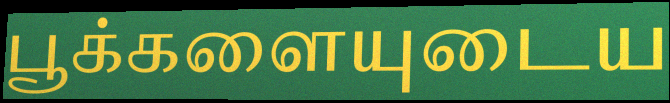
பூக்களையுடைய